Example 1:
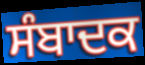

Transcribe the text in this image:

ਸੰਬਾਦਕ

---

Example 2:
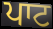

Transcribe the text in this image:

ਪਾਟ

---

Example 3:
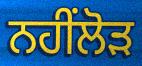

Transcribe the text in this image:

ਨਹੀਂਲੋੜ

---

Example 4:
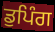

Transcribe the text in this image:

ਡੁਪਿੰਗ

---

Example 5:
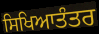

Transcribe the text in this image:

ਸਿਖਿਆਤੰਤਰ